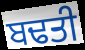
ਬਢਤੀ